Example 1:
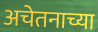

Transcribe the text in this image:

अचेतनाच्या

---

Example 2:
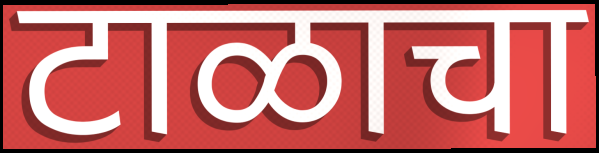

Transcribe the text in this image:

टाळाचा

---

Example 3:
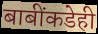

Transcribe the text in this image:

बाबींकडेही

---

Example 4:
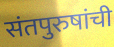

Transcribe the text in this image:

संतपुरुषांची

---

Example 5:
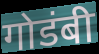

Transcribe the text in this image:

गोडंबी